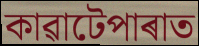
কাৱাটেপাৰাত